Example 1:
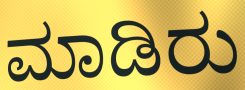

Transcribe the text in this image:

ಮಾಡಿರು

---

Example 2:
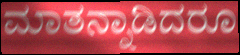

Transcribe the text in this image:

ಮಾತನ್ನಾಡಿದರೂ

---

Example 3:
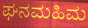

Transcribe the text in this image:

ಘನಮಹಿಮ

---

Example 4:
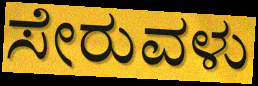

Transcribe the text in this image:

ಸೇರುವಳು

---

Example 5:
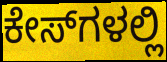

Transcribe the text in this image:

ಕೇಸ್‌ಗಳಲ್ಲಿ